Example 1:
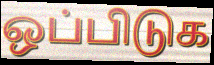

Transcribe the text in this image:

ஒப்பிடுக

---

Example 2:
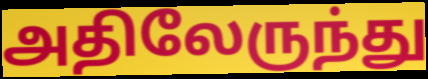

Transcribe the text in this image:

அதிலேருந்து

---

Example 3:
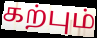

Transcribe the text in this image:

கற்பும்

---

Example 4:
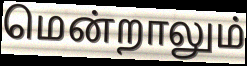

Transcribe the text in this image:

மென்றாலும்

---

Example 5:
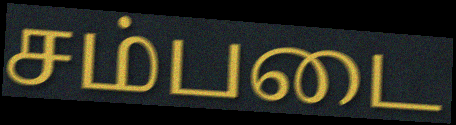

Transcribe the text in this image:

சம்படை